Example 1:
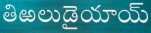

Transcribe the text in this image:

తిఱలుడైయాయ్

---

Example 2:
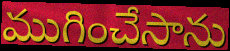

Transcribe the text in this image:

ముగించేసాను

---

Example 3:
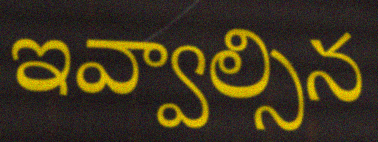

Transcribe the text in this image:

ఇవ్వాల్సిన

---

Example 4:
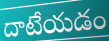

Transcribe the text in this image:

దాటేయడం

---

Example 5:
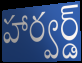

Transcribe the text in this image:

హార్వర్డ్